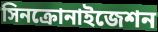
সিনক্রোনাইজেশন